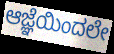
ಆಜ್ಞೆಯಿಂದಲೇ